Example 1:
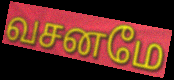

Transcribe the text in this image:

வசனமே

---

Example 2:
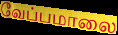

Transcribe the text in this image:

வேப்பமாலை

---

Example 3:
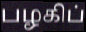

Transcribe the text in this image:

பழகிப்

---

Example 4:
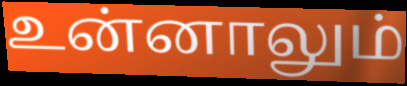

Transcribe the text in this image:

உன்னாலும்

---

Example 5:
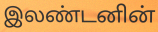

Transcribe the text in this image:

இலண்டனின்